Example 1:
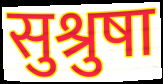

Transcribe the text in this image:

सुश्रुषा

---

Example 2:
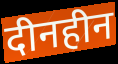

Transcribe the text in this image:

दीनहीन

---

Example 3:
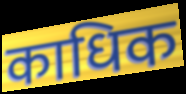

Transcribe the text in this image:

काधिक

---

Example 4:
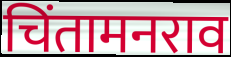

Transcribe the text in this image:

चिंतामनराव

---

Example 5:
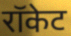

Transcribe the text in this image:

रॉकेट